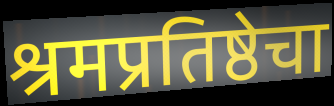
श्रमप्रतिष्ठेचा